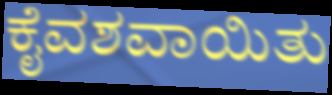
ಕೈವಶವಾಯಿತು